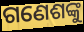
ଗଣେଶଙ୍କୁ